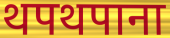
थपथपाना